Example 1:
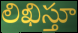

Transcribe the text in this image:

లిఖిస్తూ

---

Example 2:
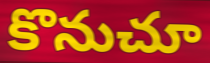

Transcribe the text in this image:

కొనుచూ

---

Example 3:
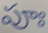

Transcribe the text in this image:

పూః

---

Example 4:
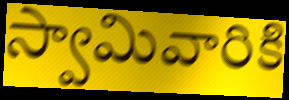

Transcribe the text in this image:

స్వామివారికి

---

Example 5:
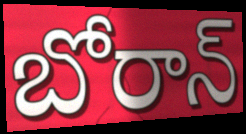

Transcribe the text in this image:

బోరాన్